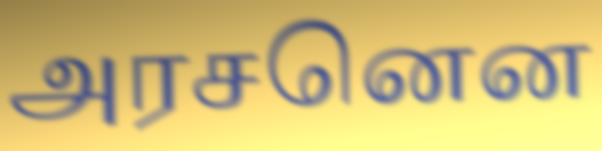
அரசனென